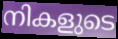
നികളുടെ